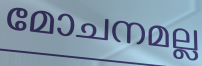
മോചനമല്ല